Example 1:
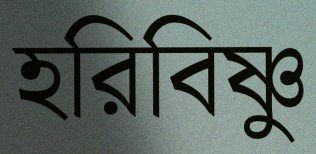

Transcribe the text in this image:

হরিবিষ্ণু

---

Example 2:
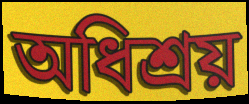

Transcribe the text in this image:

অধিশ্রয়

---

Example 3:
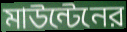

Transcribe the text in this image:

মাউন্টেনের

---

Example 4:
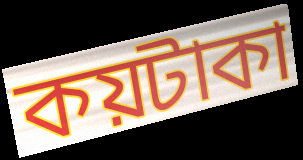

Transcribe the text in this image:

কয়টাকা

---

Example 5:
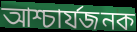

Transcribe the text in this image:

আশ্চার্যজনক